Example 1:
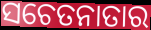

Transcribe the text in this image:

ସଚେତନାତାର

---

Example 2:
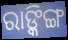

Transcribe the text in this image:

ରାଙ୍କିଙ୍ଗ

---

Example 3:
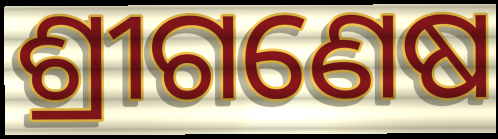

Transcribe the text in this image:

ଶ୍ରୀଗଣେଷ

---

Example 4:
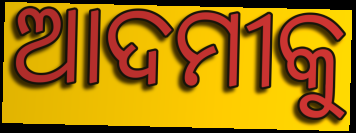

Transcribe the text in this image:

ଆଦମୀକୁ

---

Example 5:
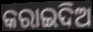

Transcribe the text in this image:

କରାଇଦିଅ